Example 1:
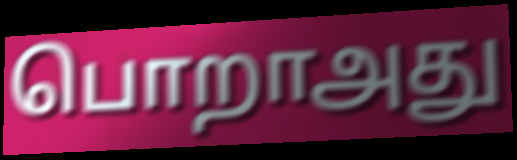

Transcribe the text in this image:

பொறாஅது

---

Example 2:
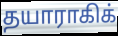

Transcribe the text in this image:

தயாராகிக்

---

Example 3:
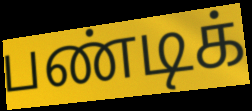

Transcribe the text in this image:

பண்டிக்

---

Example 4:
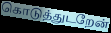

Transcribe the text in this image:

கொடுத்துடறேன்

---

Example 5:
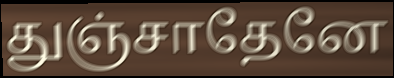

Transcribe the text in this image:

துஞ்சாதேனே